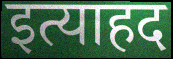
इत्याहद